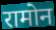
रामोन